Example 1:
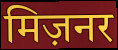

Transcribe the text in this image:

मिज़नर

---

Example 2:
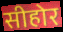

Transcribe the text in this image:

सीहोर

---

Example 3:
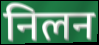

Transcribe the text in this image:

निलन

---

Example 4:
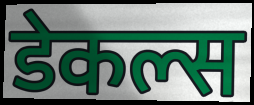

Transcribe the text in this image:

डेकल्स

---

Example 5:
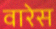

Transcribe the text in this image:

वारेस